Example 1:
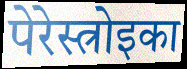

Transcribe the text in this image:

पेरेस्त्रोइका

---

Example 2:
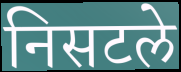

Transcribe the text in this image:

निसटले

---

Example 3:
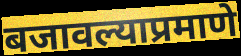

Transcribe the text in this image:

बजावल्याप्रमाणे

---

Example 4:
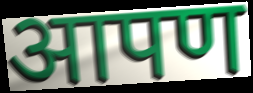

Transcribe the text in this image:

आपण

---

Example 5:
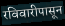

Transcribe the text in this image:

रविवारीपासून